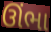
ઊંભા